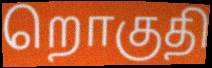
றொகுதி